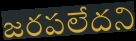
జరపలేదని